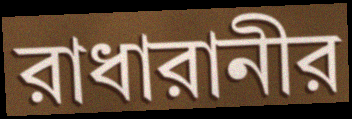
রাধারানীর